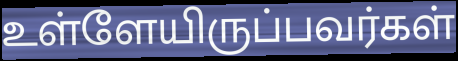
உள்ளேயிருப்பவர்கள்